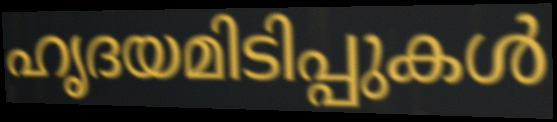
ഹൃദയമിടിപ്പുകൾ